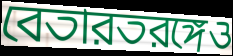
বেতারতরঙ্গেও